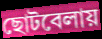
ছোটবেলায়